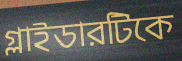
গ্লাইডারটিকে